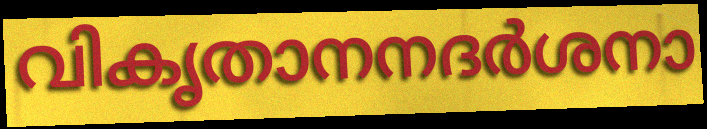
വികൃതാനനദർശനാ